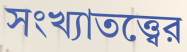
সংখ্যাতত্ত্বের